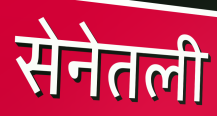
सेनेतली